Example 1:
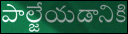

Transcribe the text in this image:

పాల్జేయడానికి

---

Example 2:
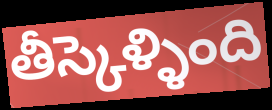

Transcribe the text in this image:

తీస్కెళ్ళింది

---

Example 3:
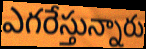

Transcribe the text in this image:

ఎగరేస్తున్నారు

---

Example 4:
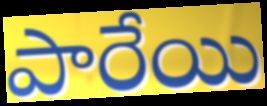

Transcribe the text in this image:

పారేయి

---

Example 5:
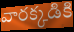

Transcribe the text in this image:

వారక్కడికి